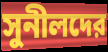
সুনীলদের